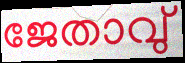
ജേതാവു്